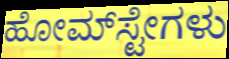
ಹೋಮ್‌ಸ್ಟೇಗಳು